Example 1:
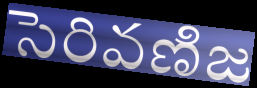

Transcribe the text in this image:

సెరివణిజ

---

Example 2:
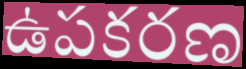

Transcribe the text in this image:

ఉపకరణ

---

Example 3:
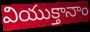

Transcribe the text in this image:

వియుక్తానాం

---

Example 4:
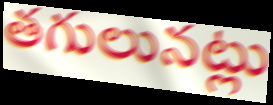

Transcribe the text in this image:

తగులునట్లు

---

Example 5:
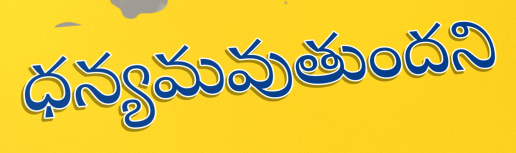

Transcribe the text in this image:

ధన్యమవుతుందని